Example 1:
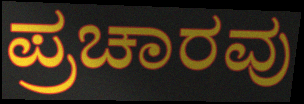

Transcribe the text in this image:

ಪ್ರಚಾರವು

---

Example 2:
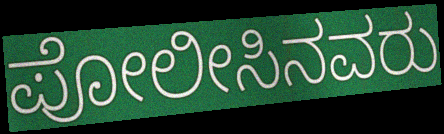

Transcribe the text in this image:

ಪೋಲೀಸಿನವರು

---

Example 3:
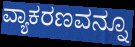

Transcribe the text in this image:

ವ್ಯಾಕರಣವನ್ನೂ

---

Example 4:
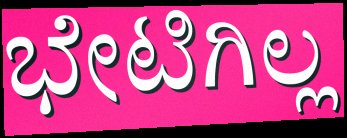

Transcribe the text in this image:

ಭೇಟಿಗಿಲ್ಲ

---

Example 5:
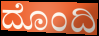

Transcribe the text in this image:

ದೊಂದಿ